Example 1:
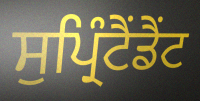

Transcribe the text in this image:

ਸੁਪ੍ਰਿੰਟੈਂਡੈਂਟ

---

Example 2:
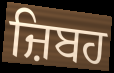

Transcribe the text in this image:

ਜ਼ਿਬਹ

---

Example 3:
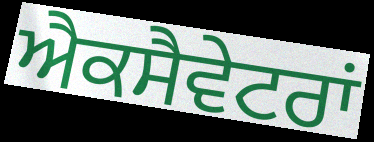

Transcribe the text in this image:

ਐਕਸੈਵੇਟਰਾਂ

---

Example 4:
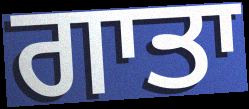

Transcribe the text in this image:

ਗਾਤਾ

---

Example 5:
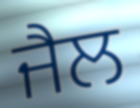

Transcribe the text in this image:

ਜੈਲ